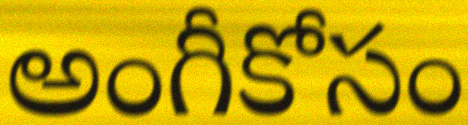
అంగీకోసం